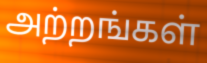
அற்றங்கள்